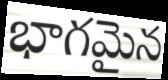
భాగమైన